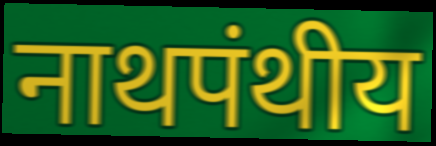
नाथपंथीय